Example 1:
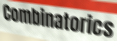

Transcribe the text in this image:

Combinatorics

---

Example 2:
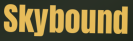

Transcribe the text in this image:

Skybound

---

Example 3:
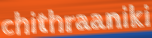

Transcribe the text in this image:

chithraaniki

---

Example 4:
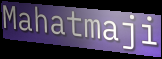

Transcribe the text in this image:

Mahatmaji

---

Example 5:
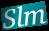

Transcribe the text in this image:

Slm